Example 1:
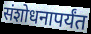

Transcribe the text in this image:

संशोधनापर्यंत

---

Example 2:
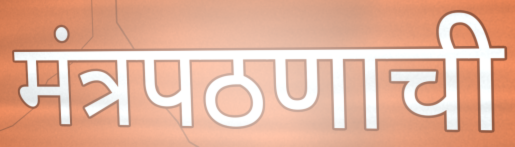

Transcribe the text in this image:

मंत्रपठणाची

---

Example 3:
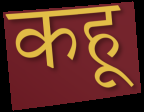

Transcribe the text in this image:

कहू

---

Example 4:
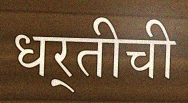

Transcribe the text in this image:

धर्तीची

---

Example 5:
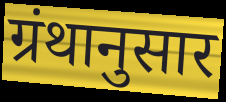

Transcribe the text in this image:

ग्रंथानुसार